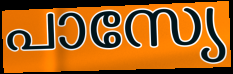
പാസ്യേ